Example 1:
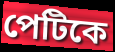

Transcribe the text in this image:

পেটিকে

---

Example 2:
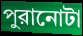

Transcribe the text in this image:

পুরানোটা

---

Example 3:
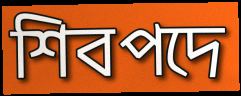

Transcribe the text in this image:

শিবপদে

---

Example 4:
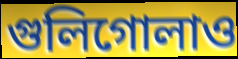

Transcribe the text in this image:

গুলিগোলাও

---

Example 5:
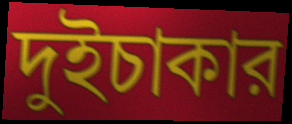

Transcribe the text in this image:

দুইচাকার